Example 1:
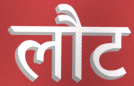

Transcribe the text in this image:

लौट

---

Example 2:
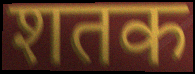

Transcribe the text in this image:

शतक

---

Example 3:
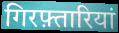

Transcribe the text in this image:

गिरफ़्तारियां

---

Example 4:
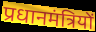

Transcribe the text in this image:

प्रधानमंत्रियों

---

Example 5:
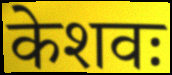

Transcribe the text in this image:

केशवः